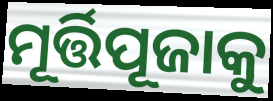
ମୂର୍ତ୍ତିପୂଜାକୁ